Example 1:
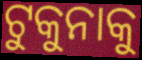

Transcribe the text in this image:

ଟୁକୁନାକୁ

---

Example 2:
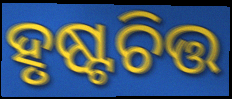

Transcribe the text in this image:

ହୃଷ୍ଟଚିତ୍ତ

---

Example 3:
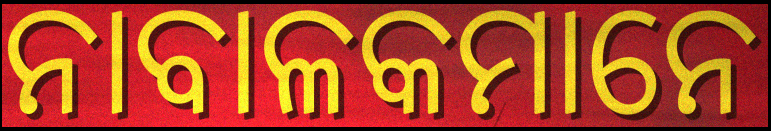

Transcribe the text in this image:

ନାବାଳକମାନେ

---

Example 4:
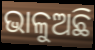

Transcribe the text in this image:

ଭାଳୁଅଛି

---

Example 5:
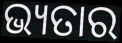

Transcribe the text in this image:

ଭ୍ୟତାର